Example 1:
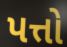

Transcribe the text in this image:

પત્તો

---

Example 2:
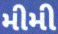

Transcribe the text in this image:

મીમી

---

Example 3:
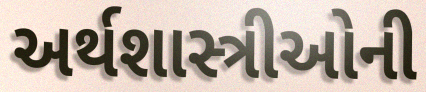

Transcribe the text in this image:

અર્થશાસ્ત્રીઓની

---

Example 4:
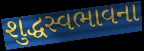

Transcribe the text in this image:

શુદ્ધસ્વભાવના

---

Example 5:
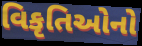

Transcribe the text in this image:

વિકૃતિઓનો